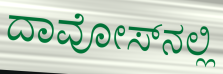
ದಾವೋಸ್‌ನಲ್ಲಿ